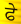
ਫੇ